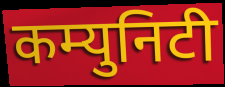
कम्युनिटी